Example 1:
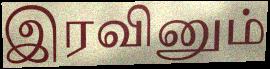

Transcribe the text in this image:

இரவினும்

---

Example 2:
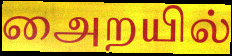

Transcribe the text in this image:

அைறயில்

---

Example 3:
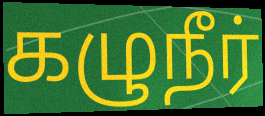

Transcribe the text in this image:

கழுநீர்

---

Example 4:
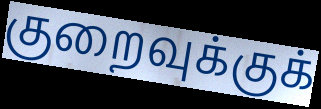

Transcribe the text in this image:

குறைவுக்குக்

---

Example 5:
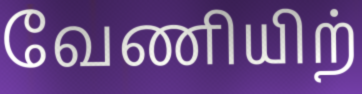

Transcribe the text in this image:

வேணியிற்